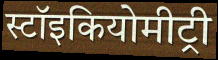
स्टॉइकियोमीट्री